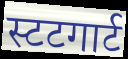
स्टटगार्ट